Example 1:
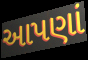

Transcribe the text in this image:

આપણાં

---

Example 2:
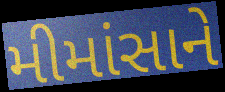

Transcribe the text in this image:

મીમાંસાને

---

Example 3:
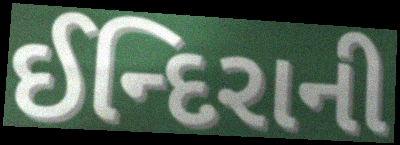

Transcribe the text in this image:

ઈન્દિરાની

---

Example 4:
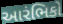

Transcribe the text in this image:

આરંભિકો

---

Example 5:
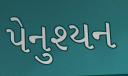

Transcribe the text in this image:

પેનુશ્યન